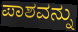
ಪಾಶವನ್ನು